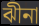
ঝীনা